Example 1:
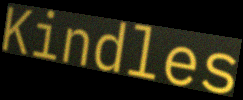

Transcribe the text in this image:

Kindles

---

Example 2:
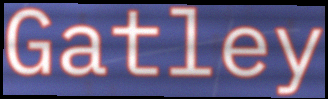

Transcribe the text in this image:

Gatley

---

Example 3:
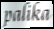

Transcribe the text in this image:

palika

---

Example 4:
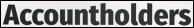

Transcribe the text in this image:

Accountholders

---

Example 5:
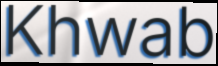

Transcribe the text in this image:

Khwab